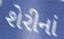
શેરીનાં